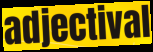
adjectival